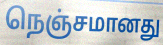
நெஞ்சமானது